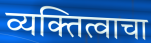
व्यक्तित्वाचा